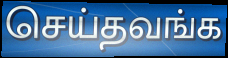
செய்தவங்க